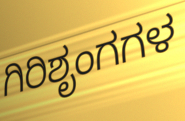
ಗಿರಿಶೃಂಗಗಳ